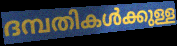
ദമ്പതികൾക്കുള്ള